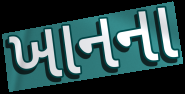
ખાનના